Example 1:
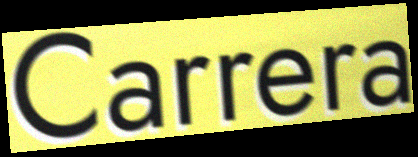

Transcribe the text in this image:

Carrera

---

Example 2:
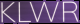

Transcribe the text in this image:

KLWR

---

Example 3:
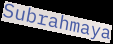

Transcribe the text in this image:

Subrahmaya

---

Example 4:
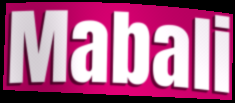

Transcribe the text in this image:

Mabali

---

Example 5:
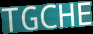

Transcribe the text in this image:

TGCHE